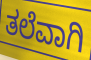
ತಲೆವಾಗಿ